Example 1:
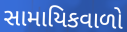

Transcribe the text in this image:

સામાયિકવાળો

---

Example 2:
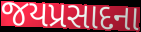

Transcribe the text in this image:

જયપ્રસાદના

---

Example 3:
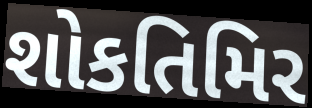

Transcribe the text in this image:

શોકતિમિર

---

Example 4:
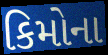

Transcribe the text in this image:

કિમોના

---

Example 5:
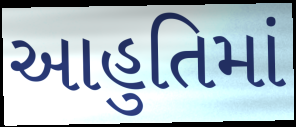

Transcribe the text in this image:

આહુતિમાં